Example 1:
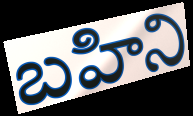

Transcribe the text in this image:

బహిని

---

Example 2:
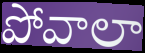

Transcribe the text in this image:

పోవాలా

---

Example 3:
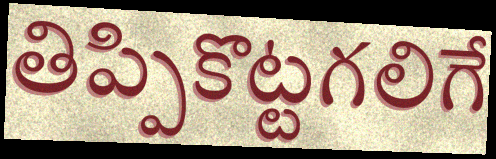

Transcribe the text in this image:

తిప్పికొట్టగలిగే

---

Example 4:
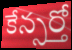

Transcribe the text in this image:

కేన్సర్తో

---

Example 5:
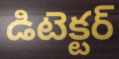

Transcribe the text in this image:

డిటెక్టర్